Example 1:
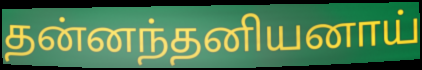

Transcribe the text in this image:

தன்னந்தனியனாய்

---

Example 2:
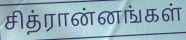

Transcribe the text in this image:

சித்ரான்னங்கள்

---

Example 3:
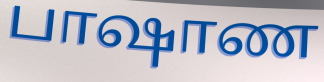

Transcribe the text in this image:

பாஷாண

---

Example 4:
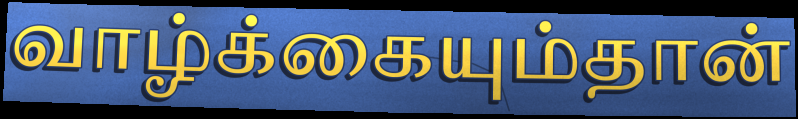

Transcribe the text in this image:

வாழ்க்கையும்தான்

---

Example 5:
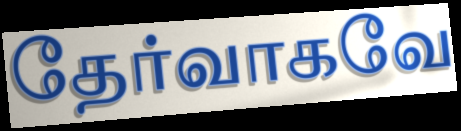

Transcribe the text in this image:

தேர்வாகவே